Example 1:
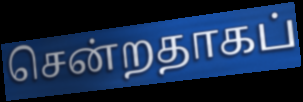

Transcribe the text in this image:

சென்றதாகப்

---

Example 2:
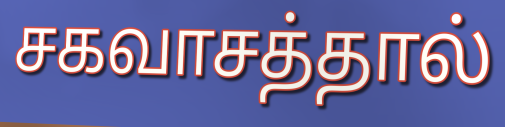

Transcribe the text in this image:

சகவாசத்தால்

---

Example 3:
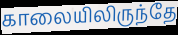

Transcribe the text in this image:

காலையிலிருந்தே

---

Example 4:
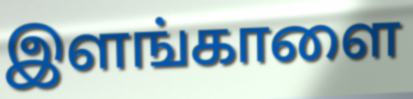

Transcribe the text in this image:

இளங்காளை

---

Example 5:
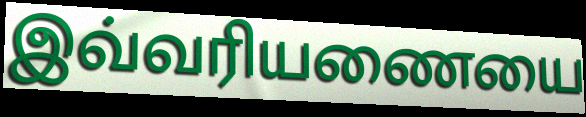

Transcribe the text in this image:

இவ்வரியணையை